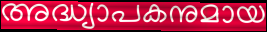
അദ്ധ്യാപകനുമായ